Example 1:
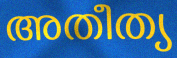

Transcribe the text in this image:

അതീത്യ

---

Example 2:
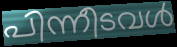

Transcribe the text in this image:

പിന്നീടവൾ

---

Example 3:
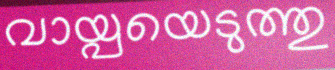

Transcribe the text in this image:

വായ്പയെടുത്തു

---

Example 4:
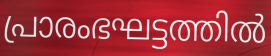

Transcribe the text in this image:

പ്രാരംഭഘട്ടത്തിൽ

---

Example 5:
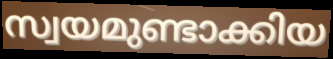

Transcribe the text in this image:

സ്വയമുണ്ടാക്കിയ